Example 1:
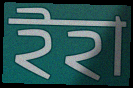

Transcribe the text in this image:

ইহা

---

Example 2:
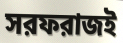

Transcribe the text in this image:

সরফরাজই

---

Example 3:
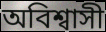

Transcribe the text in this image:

অবিশ্বাসী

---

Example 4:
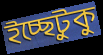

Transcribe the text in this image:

ইচ্ছেটুকু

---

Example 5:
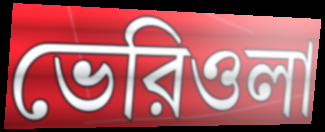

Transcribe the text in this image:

ভেরিওলা